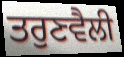
ਤਰੁਣਵੈਲੀ